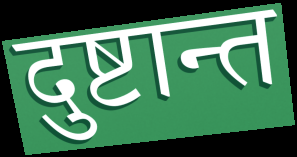
दुष्टान्त